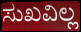
ಸುಖವಿಲ್ಲ